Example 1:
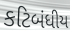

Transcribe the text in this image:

કટિબંધીય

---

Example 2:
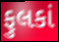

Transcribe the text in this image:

ફુલકાં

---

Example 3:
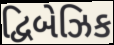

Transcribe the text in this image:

દ્વિબેઝિક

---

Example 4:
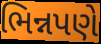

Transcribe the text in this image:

ભિન્નપણે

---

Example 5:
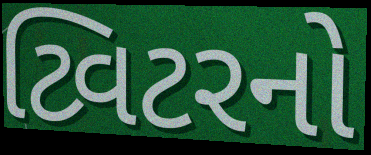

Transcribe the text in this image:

ટ્વિટરનો